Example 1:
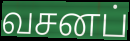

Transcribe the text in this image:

வசனப்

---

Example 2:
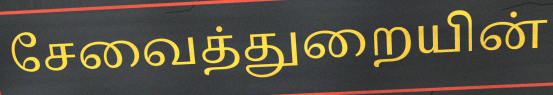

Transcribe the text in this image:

சேவைத்துறையின்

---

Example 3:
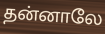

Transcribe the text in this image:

தன்னாலே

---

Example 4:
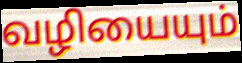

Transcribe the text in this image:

வழியையும்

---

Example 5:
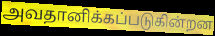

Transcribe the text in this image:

அவதானிக்கப்படுகின்றன